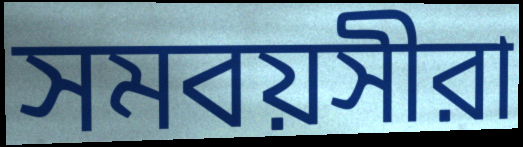
সমবয়সীরা